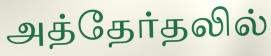
அத்தேர்தலில்